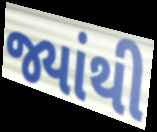
જ્યાંથી